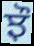
ਝੌ